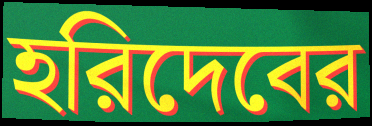
হরিদেবের